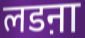
लडऩा